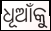
ଧୂଆଁକୁ